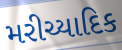
મરીચ્યાદિક